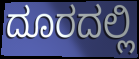
ದೂರದಲ್ಲಿ